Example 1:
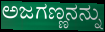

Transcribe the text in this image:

ಅಜಗಣ್ಣನನ್ನು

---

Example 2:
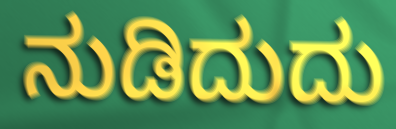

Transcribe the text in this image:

ನುಡಿದುದು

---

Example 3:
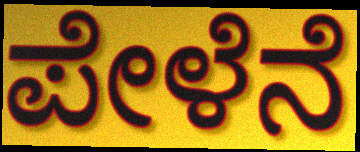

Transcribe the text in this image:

ಪೇಳೆನೆ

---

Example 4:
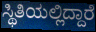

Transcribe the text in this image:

ಸ್ಥಿತಿಯಲ್ಲಿದ್ದಾರೆ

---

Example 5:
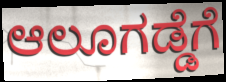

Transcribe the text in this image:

ಆಲೂಗಡ್ಡೆಗೆ